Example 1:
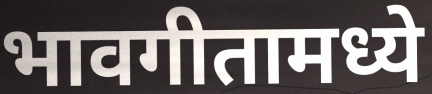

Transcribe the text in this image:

भावगीतामध्ये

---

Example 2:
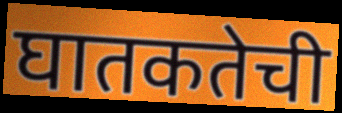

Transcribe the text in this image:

घातकतेची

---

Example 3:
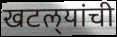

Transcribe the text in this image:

खटल्यांची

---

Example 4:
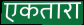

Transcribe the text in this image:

एकतारा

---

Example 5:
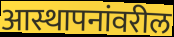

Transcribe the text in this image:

आस्थापनांवरील